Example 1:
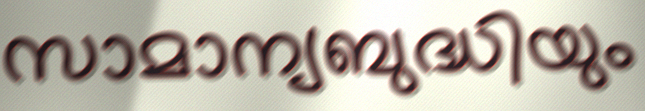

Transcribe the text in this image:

സാമാന്യബുദ്ധിയും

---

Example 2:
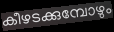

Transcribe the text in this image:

കീഴടക്കുമ്പോഴും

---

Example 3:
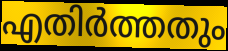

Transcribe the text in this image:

എതിർത്തതും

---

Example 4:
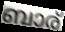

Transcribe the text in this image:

ബാര്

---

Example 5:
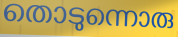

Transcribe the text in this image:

തൊടുന്നൊരു